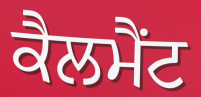
ਕੈਲਮੈਂਟ